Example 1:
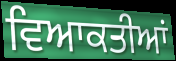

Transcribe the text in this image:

ਵਿਆਕਤੀਆਂ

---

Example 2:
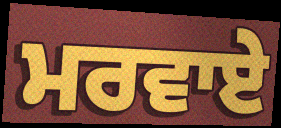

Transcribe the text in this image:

ਮਰਵਾਏ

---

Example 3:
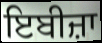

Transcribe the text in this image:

ਇਬੀਜ਼ਾ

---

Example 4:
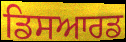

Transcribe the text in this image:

ਡਿਸਆਰਡ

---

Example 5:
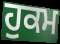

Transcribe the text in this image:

ਹੁਕਮ